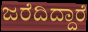
ಜರೆದಿದ್ದಾರೆ